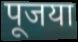
पूजया